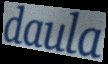
daula